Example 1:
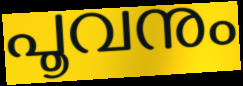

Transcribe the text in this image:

പൂവനും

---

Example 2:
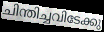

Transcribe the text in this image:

ചിന്തിച്ചവിടേക്കു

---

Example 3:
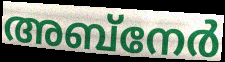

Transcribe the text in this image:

അബ്നേർ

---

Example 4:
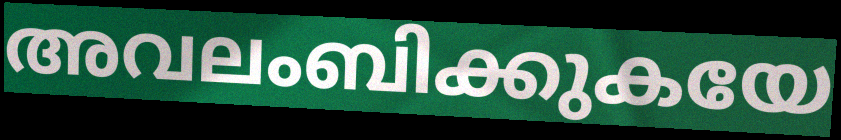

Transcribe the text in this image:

അവലംബിക്കുകയേ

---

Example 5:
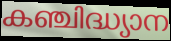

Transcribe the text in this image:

കഞ്ചിദ്ധ്യാന